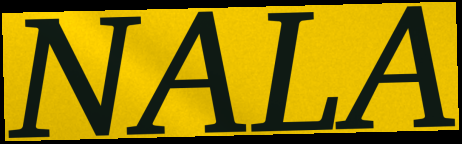
NALA